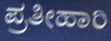
ಪ್ರತೀಹಾರಿ